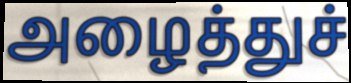
அழைத்துச்